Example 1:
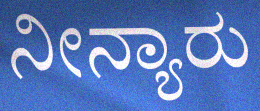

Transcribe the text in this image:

ನೀನ್ಯಾರು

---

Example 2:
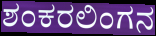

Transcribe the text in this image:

ಶಂಕರಲಿಂಗನ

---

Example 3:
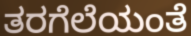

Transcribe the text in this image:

ತರಗೆಲೆಯಂತೆ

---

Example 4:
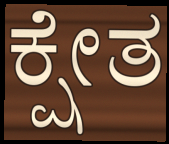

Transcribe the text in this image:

ಕ್ಷೇತ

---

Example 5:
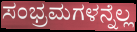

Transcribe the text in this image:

ಸಂಭ್ರಮಗಳನ್ನೆಲ್ಲ